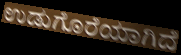
ಉಡುಗೊರೆಯಾಗಿದೆ